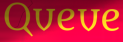
Queue